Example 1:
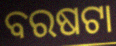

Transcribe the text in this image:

ବରଷଟା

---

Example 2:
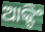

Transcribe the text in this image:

ଆକ୍ଟିଂ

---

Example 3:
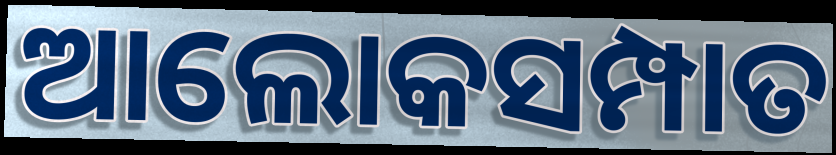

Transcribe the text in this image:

ଆଲୋକସମ୍ପାତ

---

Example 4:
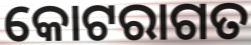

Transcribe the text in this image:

କୋଟରାଗତ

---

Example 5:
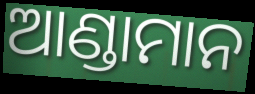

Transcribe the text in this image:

ଆଣ୍ଡାମାନ